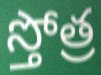
స్తోత్ర